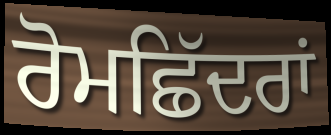
ਰੋਮਛਿੱਦਰਾਂ